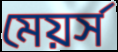
মেয়র্স